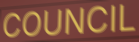
COUNCIL